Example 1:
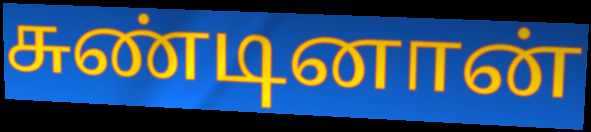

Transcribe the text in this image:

சுண்டினான்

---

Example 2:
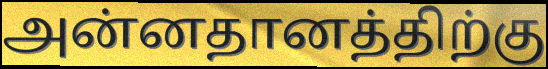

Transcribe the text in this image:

அன்னதானத்திற்கு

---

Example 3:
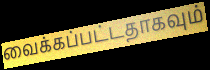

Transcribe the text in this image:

வைக்கப்பட்டதாகவும்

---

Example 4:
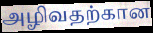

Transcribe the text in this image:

அழிவதற்கான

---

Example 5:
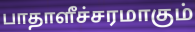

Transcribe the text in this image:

பாதாளீச்சரமாகும்